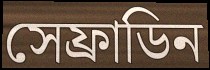
সেফ্রাডিন